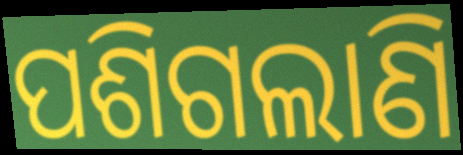
ପଶିଗଲାଣି